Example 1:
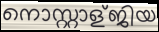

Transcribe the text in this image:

നൊസ്റ്റാള്ജിയ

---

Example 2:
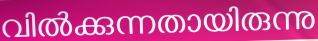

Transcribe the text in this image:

വിൽക്കുന്നതായിരുന്നു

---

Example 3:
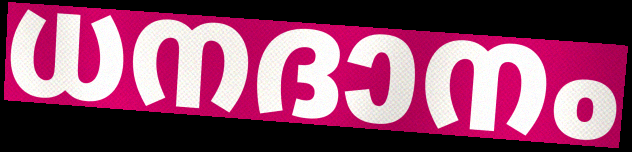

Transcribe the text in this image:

ധനദാനം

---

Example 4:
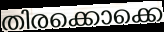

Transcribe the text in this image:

തിരക്കൊക്കെ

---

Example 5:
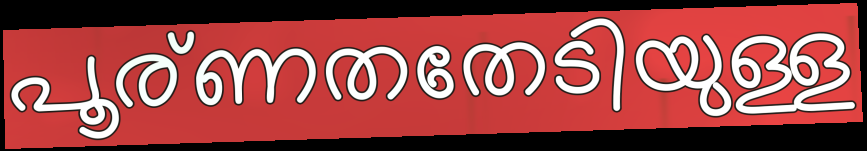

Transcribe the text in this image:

പൂര്ണതതേടിയുള്ള